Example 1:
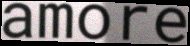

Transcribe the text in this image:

amore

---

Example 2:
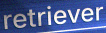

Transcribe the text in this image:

retriever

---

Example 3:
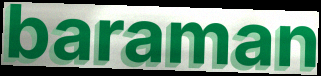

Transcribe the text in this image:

baraman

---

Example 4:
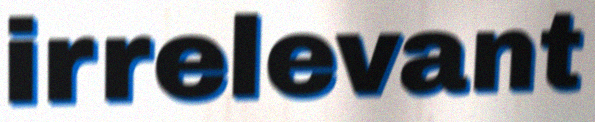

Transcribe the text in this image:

irrelevant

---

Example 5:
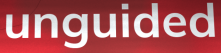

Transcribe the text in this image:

unguided